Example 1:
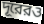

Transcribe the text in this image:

দূরেরও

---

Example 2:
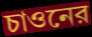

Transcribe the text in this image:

চাওনের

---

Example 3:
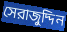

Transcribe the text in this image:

সেরাজুদ্দিন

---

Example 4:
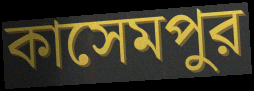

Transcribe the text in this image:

কাসেমপুর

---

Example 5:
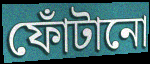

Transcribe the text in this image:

ফোঁটানো